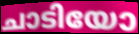
ചാടിയോ